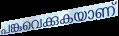
പങ്കുവെക്കുകയാണ്